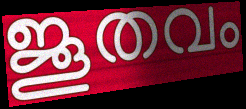
ജൂതവം